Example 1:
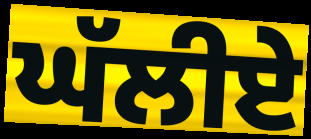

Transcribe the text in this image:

ਘੱਲੀਏ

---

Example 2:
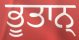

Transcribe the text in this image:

ਭੂਤਾਨ੍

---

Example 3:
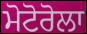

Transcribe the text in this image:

ਮੋਟੋਰੋਲਾ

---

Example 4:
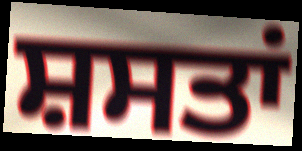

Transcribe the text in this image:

ਸ਼ਸਤਾਂ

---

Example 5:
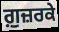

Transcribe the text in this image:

ਗ਼ੁਜ਼ਰਕੇ